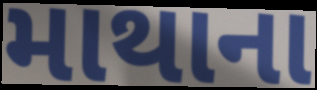
માથાના